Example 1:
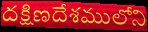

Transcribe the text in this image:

దక్షిణదేశములోని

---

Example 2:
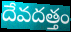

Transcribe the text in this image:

దేవదత్తం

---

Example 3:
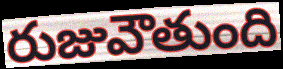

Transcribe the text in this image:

రుజువౌతుంది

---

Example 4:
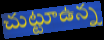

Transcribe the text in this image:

చుట్టూఉన్న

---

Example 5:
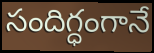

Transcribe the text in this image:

సందిగ్ధంగానే